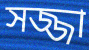
সজ্জা